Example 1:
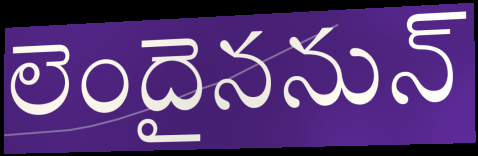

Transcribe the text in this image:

లెందైననున్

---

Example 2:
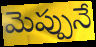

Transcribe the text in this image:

మెప్పునే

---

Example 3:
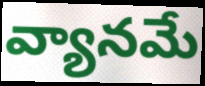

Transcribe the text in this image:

వ్యానమే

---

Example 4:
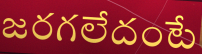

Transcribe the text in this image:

జరగలేదంటే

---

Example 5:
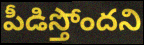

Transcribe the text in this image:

పీడిస్తోందని